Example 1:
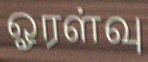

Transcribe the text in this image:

ஓரள்வு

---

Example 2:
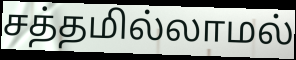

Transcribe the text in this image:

சத்தமில்லாமல்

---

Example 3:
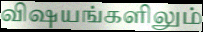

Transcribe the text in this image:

விஷயங்களிலும்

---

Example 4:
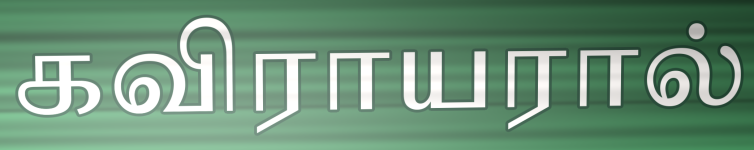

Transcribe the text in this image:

கவிராயரால்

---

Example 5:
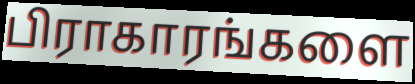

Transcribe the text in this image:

பிராகாரங்களை